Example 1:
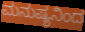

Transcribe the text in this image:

ಮನುಷ್ಯನಿಂದ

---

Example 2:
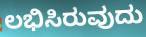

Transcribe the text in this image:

ಲಭಿಸಿರುವುದು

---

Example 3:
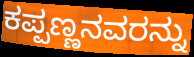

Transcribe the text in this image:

ಕಪ್ಪಣ್ಣನವರನ್ನು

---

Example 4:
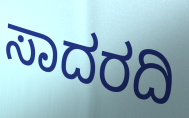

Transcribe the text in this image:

ಸಾದರದಿ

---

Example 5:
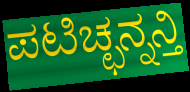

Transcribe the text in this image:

ಪಟಿಚ್ಛನ್ನನ್ತಿ